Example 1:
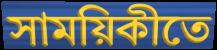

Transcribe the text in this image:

সাময়িকীতে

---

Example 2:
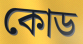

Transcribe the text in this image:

কোড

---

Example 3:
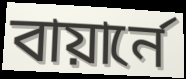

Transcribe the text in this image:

বায়ার্নে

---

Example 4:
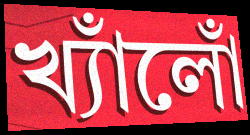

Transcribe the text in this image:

খ্যাঁলোঁ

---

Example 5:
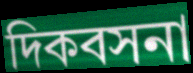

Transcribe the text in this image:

দিকবসনা